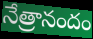
నేత్రానందం